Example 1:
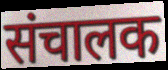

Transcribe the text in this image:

संचालक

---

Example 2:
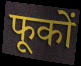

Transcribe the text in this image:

फूकों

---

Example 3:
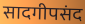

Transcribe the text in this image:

सादगीपसंद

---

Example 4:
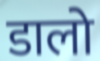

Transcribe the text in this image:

डालो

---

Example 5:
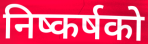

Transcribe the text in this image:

निष्कर्षको